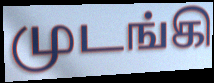
முடங்கி